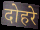
दोहरे